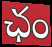
ఛం